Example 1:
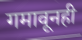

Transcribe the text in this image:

गमावूनही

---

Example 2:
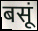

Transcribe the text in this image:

बसूं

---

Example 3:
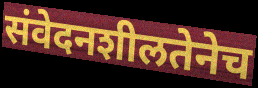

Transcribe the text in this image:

संवेदनशीलतेनेच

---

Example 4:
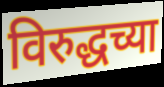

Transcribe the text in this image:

विरुद्धच्या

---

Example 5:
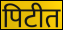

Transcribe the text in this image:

पिटीत